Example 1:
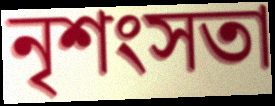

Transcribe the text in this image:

নৃশংসতা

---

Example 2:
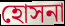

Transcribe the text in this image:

হোসনা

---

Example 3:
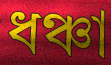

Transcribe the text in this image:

ধঞ্চা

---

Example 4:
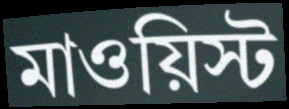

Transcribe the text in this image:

মাওয়িস্ট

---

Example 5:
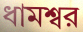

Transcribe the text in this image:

ধামশ্বর